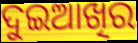
ଦୁଇଆଖିର